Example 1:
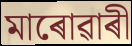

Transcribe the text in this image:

মাৰোৱাৰী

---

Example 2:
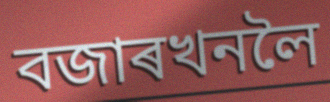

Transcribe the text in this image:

বজাৰখনলৈ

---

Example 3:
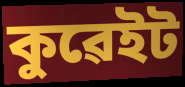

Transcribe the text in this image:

কুৱেইট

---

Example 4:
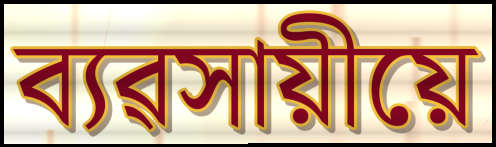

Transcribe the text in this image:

ব্যৱসায়ীয়ে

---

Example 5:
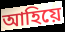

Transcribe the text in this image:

আহিয়ে